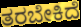
ತರಬೇಕಿದೆ